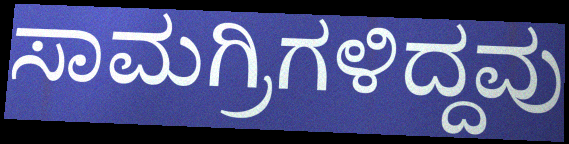
ಸಾಮಗ್ರಿಗಳಿದ್ದವು